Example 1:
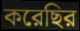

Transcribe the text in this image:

করেছির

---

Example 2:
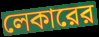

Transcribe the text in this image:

লেকারের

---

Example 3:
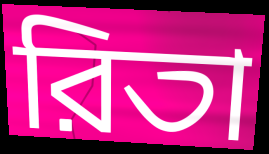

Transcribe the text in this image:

রিতা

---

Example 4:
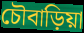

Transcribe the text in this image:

চৌবাড়িয়া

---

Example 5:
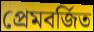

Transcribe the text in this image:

প্রেমবর্জিত